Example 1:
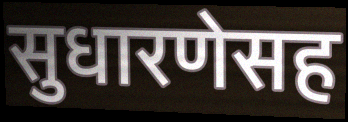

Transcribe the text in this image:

सुधारणेसह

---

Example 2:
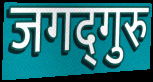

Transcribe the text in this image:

जगद्‍गुरु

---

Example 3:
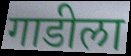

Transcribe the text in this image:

गाडीला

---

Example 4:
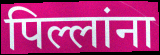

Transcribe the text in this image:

पिल्लांना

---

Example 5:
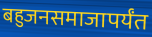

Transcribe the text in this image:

बहुजनसमाजापर्यंत